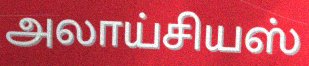
அலாய்சியஸ்